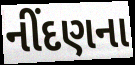
નીંદણના